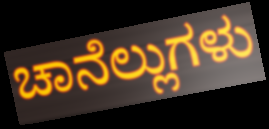
ಚಾನೆಲ್ಲುಗಳು